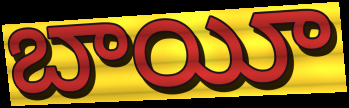
బాయీ